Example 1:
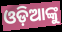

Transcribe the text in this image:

ଓଡ଼ିଆଙ୍କୁ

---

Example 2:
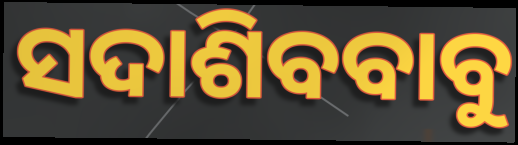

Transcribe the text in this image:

ସଦାଶିବବାବୁ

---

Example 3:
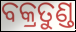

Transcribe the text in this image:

ବକ୍ରତୁଣ୍ଡ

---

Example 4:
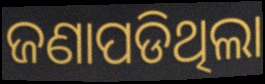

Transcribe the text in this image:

ଜଣାପଡିଥିଲା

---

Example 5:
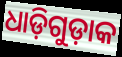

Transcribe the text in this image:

ଧାଡ଼ିଗୁଡ଼ାକ